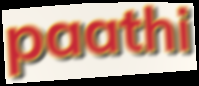
paathi